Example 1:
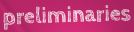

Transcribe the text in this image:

preliminaries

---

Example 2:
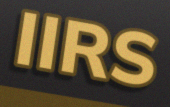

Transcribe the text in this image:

IIRS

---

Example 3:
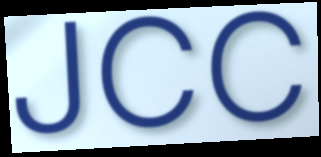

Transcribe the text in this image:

JCC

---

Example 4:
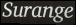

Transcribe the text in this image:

Surange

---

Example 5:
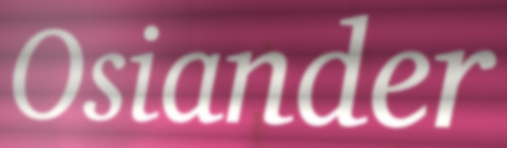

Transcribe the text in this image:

Osiander